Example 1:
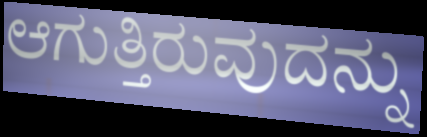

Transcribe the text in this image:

ಆಗುತ್ತಿರುವುದನ್ನು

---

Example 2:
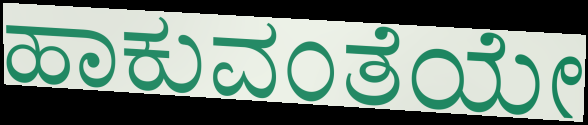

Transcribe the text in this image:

ಹಾಕುವಂತೆಯೇ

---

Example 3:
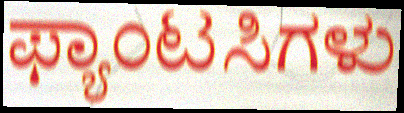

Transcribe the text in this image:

ಫ್ಯಾಂಟಸಿಗಳು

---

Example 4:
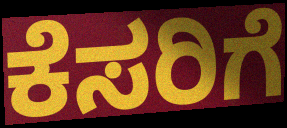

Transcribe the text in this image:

ಕೆಸರಿಗೆ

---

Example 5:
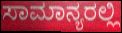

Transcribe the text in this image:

ಸಾಮಾನ್ಯರಲ್ಲಿ